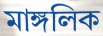
মাঙ্গলিক